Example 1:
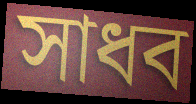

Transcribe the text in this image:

সাধব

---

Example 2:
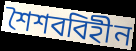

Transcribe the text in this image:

শৈশববিহীন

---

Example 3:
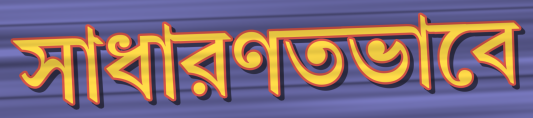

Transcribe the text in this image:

সাধারণতভাবে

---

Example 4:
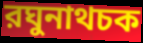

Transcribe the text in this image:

রঘুনাথচক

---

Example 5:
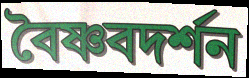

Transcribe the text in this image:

বৈষ্ণবদর্শন